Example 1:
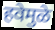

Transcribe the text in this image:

हवेमुळे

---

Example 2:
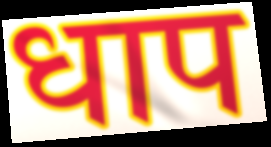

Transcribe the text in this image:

धाप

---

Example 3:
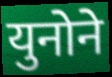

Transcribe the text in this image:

युनोने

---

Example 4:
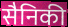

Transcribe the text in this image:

सैनिकी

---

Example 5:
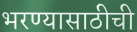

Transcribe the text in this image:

भरण्यासाठीची